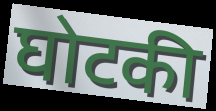
घोटकी